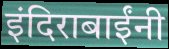
इंदिराबाईंनी